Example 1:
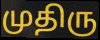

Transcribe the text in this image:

முதிரு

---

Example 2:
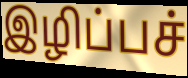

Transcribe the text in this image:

இழிப்பச்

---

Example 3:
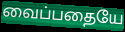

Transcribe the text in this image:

வைப்பதையே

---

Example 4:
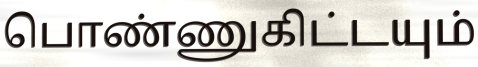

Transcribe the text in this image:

பொண்ணுகிட்டயும்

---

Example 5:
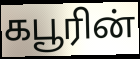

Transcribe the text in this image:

கபூரின்